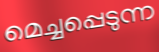
മെച്ചപ്പെടുന്ന